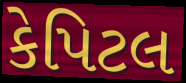
કેપિટલ